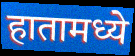
हातामध्ये